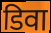
डिवा